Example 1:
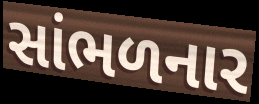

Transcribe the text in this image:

સાંભળનાર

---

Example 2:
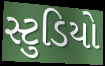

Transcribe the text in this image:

સ્ટુડિયો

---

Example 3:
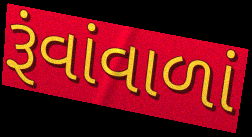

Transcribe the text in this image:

રૂંવાંવાળાં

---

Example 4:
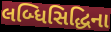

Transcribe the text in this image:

લબ્ધિસિદ્ધિના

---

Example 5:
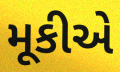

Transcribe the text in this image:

મૂકીએ